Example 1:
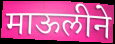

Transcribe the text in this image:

माऊलीने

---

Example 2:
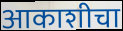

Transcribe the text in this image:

आकाशीचा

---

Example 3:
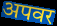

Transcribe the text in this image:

अपवर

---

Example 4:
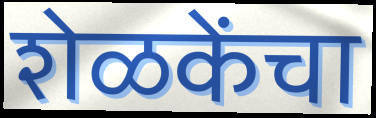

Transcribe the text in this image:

शेळकेंचा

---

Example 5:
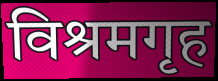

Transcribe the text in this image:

विश्रमगृह